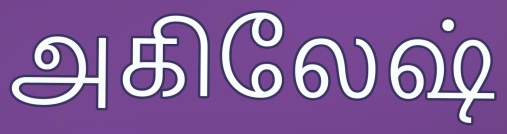
அகிலேஷ்